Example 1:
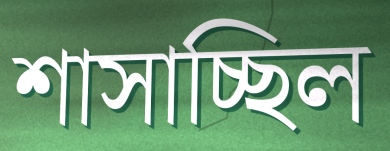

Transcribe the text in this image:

শাসাচ্ছিল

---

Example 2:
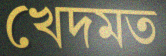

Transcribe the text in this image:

খেদমত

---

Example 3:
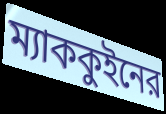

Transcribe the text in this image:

ম্যাককুইনের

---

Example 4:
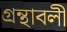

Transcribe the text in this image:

গ্রন্থাবলী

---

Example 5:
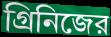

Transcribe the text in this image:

গ্রিনিজের